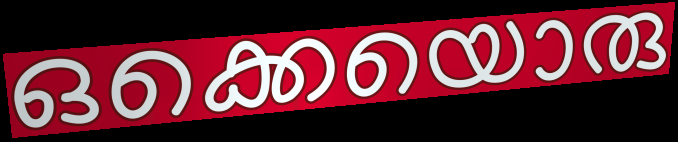
ഒക്കെയൊരു